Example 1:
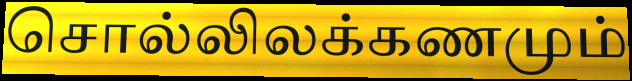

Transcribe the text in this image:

சொல்லிலக்கணமும்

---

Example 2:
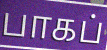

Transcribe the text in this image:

பாகப்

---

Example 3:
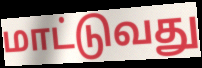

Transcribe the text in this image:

மாட்டுவது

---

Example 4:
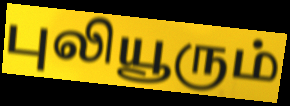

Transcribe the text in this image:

புலியூரும்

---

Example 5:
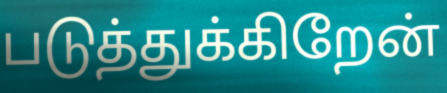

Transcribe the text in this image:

படுத்துக்கிறேன்